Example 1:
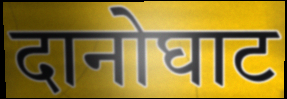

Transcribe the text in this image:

दानोघाट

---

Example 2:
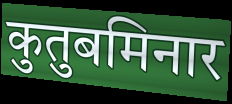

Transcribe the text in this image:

कुतुबमिनार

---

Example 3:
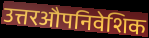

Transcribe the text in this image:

उत्तरऔपनिवेशिक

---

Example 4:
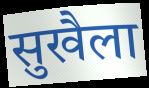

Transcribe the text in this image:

सुखैला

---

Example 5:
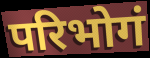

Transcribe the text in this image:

परिभोगं